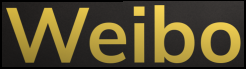
Weibo